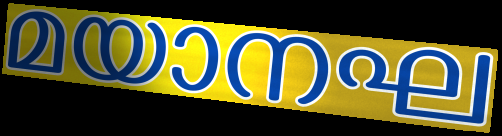
മയാനഘ